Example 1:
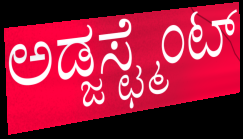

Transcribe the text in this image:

ಅಡ್ಜಸ್ಟ್ಮೆಂಟ್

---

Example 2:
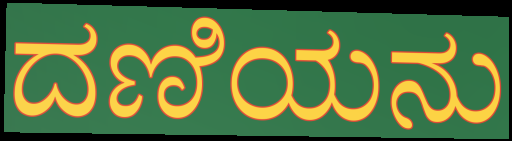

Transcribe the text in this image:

ದಣಿಯನು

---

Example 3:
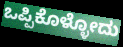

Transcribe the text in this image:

ಒಪ್ಪಿಕೊಳ್ಳೋದು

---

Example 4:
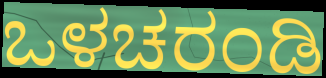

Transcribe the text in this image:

ಒಳಚರಂಡಿ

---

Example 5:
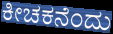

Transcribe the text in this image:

ಕೀಚಕನೆಂದು